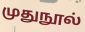
முதுநூல்